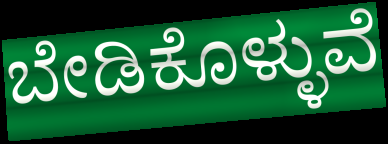
ಬೇಡಿಕೊಳ್ಳುವೆ